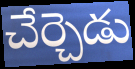
చేర్చెడు